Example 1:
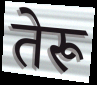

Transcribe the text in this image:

तेरू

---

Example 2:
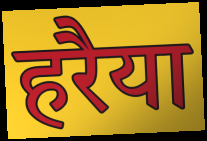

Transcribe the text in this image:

हरैया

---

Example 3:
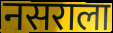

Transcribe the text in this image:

नसराला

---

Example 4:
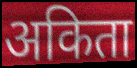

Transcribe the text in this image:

अकिता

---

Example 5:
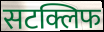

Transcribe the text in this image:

सटक्लिफ